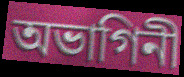
অভাগিনী